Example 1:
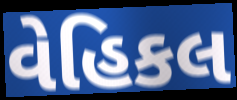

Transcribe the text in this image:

વેહિકલ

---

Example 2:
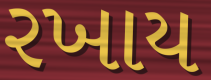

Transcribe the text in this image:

રખાય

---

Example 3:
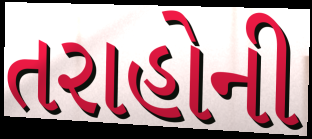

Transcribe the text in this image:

તરાહોની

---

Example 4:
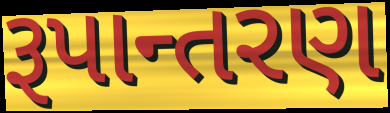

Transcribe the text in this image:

રૂપાન્તરણ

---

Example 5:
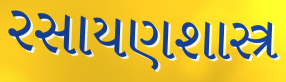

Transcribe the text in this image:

રસાયણશાસ્ત્ર